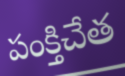
పంక్తిచేత